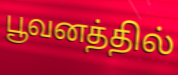
பூவனத்தில்